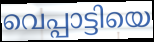
വെപ്പാട്ടിയെ